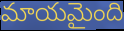
మాయమైంది